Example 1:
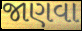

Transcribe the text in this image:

જાણવા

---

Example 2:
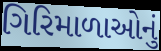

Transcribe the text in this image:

ગિરિમાળાઓનું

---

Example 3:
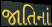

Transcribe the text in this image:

જાતિનાં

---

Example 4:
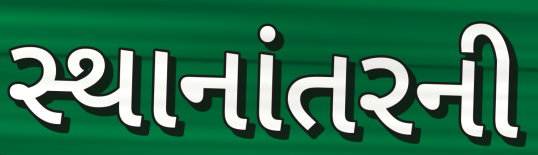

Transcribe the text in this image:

સ્થાનાંતરની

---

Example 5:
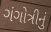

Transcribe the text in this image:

ગંગોત્રીનું